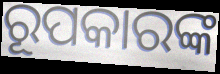
ରୂପକାରଙ୍କ